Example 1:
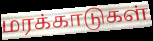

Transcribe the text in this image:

மரக்காடுகள்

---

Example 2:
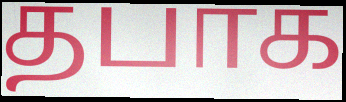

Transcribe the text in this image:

தபாக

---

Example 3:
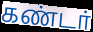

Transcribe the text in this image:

கண்டர்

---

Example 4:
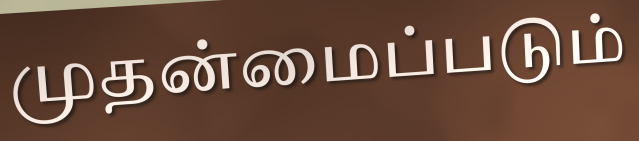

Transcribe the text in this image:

முதன்மைப்படும்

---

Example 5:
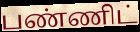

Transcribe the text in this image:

பண்ணிட்